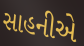
સાહનીએ